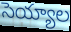
సెయ్యాల